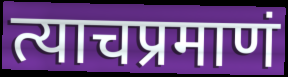
त्याचप्रमाणं